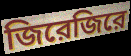
জিরেজিরে